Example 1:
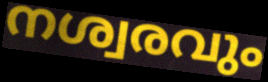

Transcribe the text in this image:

നശ്വരവും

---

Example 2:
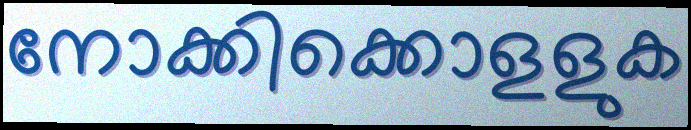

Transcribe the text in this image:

നോക്കിക്കൊളളുക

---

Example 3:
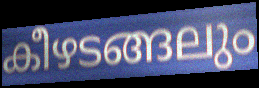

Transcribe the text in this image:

കീഴടങ്ങലും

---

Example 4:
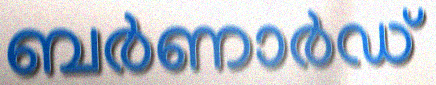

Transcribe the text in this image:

ബർണാർഡ്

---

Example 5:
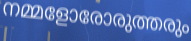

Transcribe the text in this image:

നമ്മളോരോരുത്തരും